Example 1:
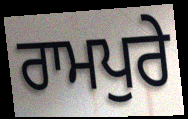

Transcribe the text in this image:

ਰਾਮਪੁਰੇ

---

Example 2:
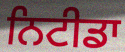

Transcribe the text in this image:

ਨਿਟੀਡਾ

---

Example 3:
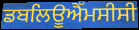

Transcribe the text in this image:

ਡਬਲਿਊਐੱਮਸੀਸੀ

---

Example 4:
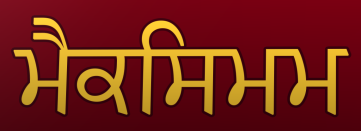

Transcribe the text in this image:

ਮੈਕਸਿਮਮ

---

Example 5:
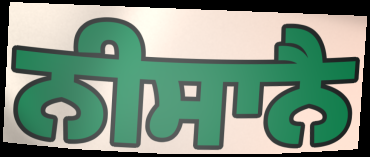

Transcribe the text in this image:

ਨੀਸਾਨੈ